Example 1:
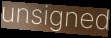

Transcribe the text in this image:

unsigned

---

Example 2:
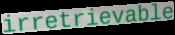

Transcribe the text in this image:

irretrievable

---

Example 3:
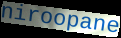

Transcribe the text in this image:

niroopane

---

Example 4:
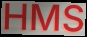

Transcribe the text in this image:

HMS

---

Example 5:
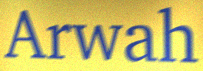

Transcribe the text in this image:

Arwah